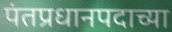
पंतप्रधानपदाच्या